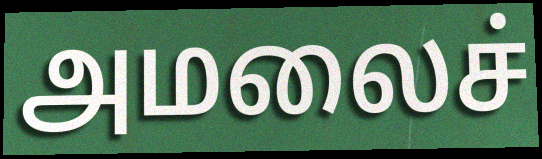
அமலைச்